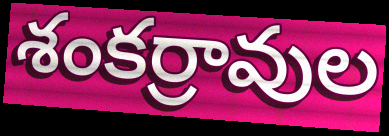
శంకర్రావుల